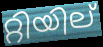
റ്റിയില്